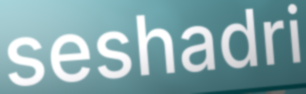
seshadri